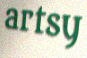
artsy